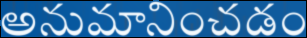
అనుమానించడం